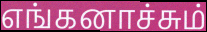
எங்கனாச்சும்